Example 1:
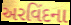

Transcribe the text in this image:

અરવિંદના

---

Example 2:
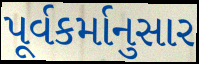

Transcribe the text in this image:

પૂર્વકર્માનુસાર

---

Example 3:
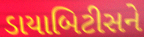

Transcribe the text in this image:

ડાયાબિટીસને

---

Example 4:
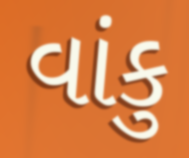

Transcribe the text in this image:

વાંકુ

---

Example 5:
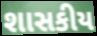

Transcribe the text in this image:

શાસકીય